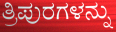
ತ್ರಿಪುರಗಳನ್ನು